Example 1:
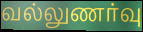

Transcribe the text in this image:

வல்லுணர்வு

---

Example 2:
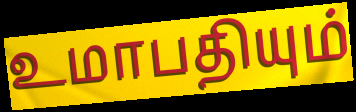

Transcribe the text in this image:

உமாபதியும்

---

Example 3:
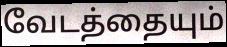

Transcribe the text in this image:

வேடத்தையும்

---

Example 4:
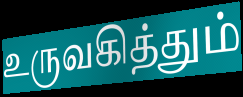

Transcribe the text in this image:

உருவகித்தும்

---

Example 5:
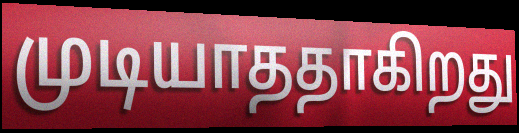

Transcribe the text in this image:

முடியாததாகிறது